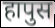
हापुस